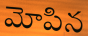
మోపిన